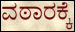
ವಠಾರಕ್ಕೆ